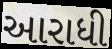
આરાધી